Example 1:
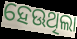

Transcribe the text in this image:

ହେଊଥିଲା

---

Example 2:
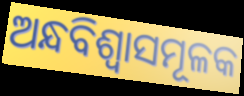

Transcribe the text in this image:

ଅନ୍ଧବିଶ୍ୱାସମୂଳକ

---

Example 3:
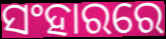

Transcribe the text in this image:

ସଂହାରରେ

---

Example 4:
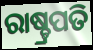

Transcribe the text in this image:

ରାଷ୍ଚ୍ରପତି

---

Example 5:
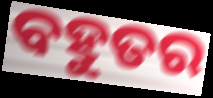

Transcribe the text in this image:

ବହୁତର